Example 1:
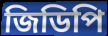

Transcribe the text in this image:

জিডিপি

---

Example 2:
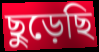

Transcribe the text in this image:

ছুড়েছি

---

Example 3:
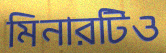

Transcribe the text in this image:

মিনারটিও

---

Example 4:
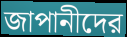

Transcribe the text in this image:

জাপানীদের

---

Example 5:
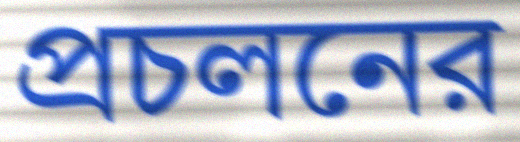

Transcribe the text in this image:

প্রচলনের